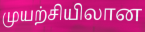
முயற்சியிலான